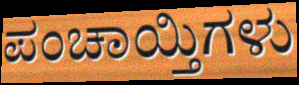
ಪಂಚಾಯ್ತಿಗಳು